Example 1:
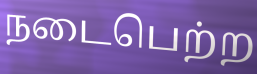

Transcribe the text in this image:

நடைபெற்ற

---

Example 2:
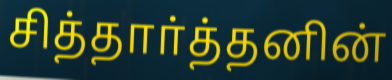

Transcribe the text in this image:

சித்தார்த்தனின்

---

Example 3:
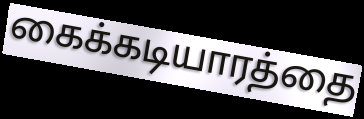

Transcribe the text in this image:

கைக்கடியாரத்தை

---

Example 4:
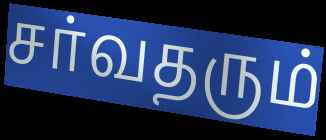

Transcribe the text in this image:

சர்வதரும்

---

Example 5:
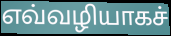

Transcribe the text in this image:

எவ்வழியாகச்